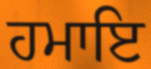
ਹਮਾਇ